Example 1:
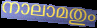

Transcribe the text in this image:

നാലാമതും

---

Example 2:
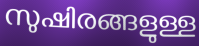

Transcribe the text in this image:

സുഷിരങ്ങളുള്ള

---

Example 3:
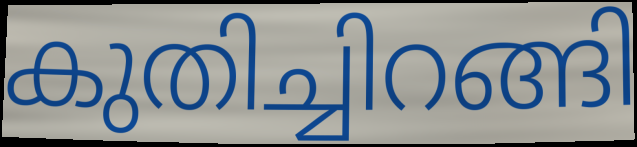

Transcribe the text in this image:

കുതിച്ചിറങ്ങി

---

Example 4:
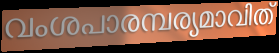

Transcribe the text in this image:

വംശപാരമ്പര്യമാവിത്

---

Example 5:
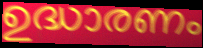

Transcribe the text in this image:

ഉദ്ധാരണം